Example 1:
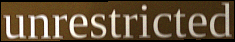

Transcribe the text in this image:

unrestricted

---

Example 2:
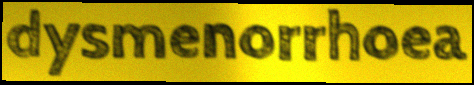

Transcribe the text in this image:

dysmenorrhoea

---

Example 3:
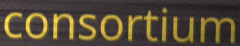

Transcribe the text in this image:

consortium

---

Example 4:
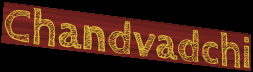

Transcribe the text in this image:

Chandvadchi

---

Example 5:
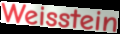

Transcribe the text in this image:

Weisstein